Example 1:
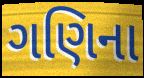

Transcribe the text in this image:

ગણિના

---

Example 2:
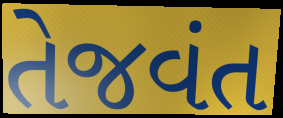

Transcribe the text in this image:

તેજવંત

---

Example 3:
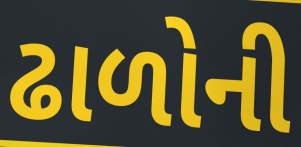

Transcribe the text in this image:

ઢાળોની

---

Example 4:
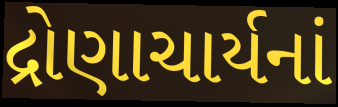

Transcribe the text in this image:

દ્રોણાચાર્યનાં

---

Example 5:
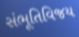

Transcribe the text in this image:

સંભૂતિવિજય